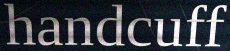
handcuff